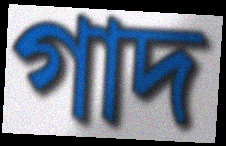
গাদ